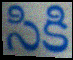
సికి